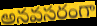
అనవసరంగా